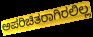
ಅಪರಿಚಿತರಾಗಿರಲಿಲ್ಲ